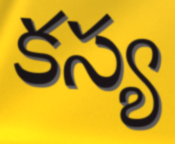
కస్య